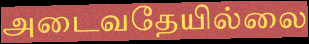
அடைவதேயில்லை